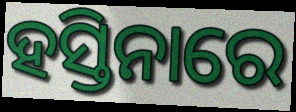
ହସ୍ତିନାରେ